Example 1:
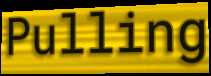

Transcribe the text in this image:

Pulling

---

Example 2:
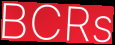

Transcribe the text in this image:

BCRs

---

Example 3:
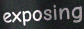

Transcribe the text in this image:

exposing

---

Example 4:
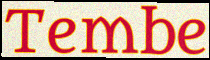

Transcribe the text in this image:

Tembe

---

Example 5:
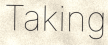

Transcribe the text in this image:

Taking